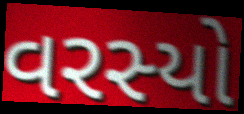
વરસ્યો